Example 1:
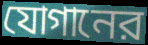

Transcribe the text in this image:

যোগানের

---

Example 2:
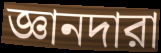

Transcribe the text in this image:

জ্ঞানদারা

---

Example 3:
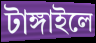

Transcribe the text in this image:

টাঙ্গাইলে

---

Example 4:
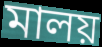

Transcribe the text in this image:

মালয়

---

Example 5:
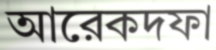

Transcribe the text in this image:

আরেকদফা